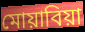
মোয়াবিয়া